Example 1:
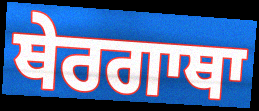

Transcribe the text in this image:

ਥੇਰਗਾਥਾ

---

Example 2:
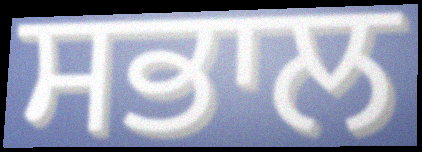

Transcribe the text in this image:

ਸਭਾਲ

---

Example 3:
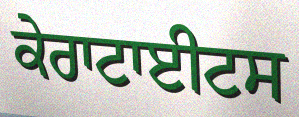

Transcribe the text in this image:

ਕੇਰਾਟਾਈਟਸ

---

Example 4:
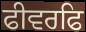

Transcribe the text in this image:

ਫੀਵਰਫਿ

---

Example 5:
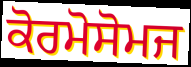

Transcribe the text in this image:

ਕੋਰਮੋਸੋਮਜ